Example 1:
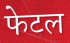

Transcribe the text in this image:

फेटल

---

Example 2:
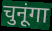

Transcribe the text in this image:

चुनूंगा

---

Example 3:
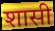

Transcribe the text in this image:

शासी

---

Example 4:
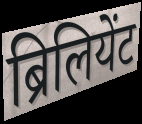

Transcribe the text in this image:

ब्रिलियेंट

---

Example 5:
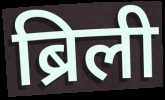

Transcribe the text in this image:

ब्रिली